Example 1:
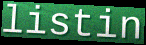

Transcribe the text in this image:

listin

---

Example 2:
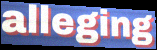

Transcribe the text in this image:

alleging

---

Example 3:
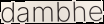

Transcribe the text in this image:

dambhe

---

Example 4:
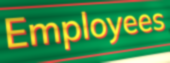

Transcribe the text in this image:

Employees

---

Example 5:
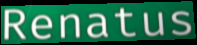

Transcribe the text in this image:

Renatus